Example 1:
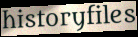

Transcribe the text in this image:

historyfiles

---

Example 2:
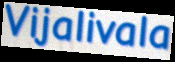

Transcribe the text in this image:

Vijalivala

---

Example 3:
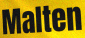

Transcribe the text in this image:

Malten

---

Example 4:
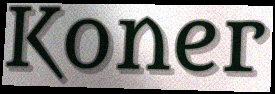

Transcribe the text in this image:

Koner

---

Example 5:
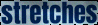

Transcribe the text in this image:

stretches